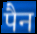
पैन